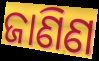
ଜାଣିଣ